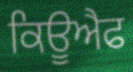
ਕਿਊਐਫ